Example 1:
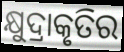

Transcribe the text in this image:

କ୍ଷୁଦ୍ରାକୃତିର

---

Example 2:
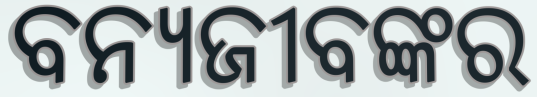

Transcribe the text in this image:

ବନ୍ୟଜୀବଙ୍କର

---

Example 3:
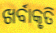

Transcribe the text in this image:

ଖର୍ବାକୃତି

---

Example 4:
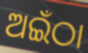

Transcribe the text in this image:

ଅଇଁଠା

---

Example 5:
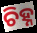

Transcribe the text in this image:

ଚିହ୍ନ